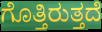
ಗೊತ್ತಿರುತ್ತದೆ